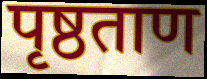
पृष्ठताण